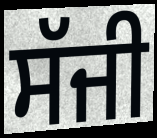
ਸੱਜੀ